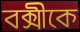
বক্সীকে